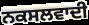
ਨਕਸਲਵਾਦੀ